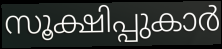
സൂക്ഷിപ്പുകാർ